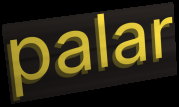
palar